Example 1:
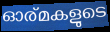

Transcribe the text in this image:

ഓര്മകളുടെ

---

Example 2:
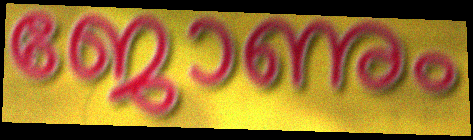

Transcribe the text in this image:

ജോണും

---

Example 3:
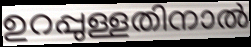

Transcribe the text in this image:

ഉറപ്പുള്ളതിനാൽ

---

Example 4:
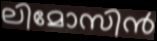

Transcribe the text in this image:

ലിമോസിൻ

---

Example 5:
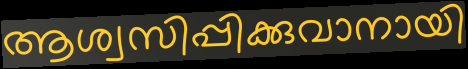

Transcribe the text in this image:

ആശ്വസിപ്പിക്കുവാനായി